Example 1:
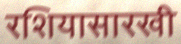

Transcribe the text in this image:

रशियासारखी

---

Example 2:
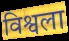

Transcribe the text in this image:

विश्वला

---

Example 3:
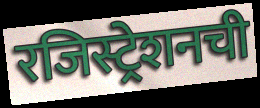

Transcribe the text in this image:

रजिस्ट्रेशनची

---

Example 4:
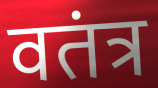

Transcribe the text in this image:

वतंत्र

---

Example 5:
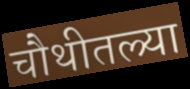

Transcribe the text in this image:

चौथीतल्या